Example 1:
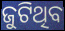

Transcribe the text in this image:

ଜୁଟିଥିବ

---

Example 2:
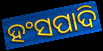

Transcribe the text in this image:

ହଂସପାଦି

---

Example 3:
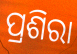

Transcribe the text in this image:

ପ୍ରଶିରା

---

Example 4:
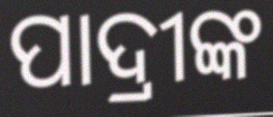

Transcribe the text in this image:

ପାଦ୍ରୀଙ୍କ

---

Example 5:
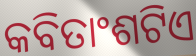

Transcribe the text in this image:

କବିତାଂଶଟିଏ